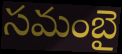
సమంబై